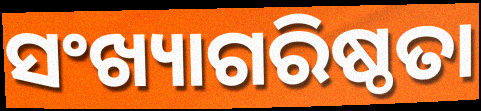
ସଂଖ୍ୟାଗରିଷ୍ଠତା